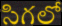
సిగలో